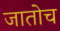
जातोच